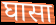
घासा